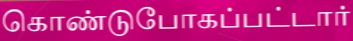
கொண்டுபோகப்பட்டார்